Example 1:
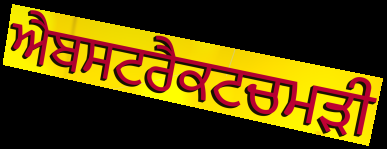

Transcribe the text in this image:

ਐਬਸਟਰੈਕਟਚਮੜੀ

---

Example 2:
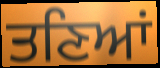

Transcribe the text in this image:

ਤਣਿਆਂ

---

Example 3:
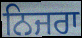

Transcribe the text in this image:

ਨਿਜਰਾ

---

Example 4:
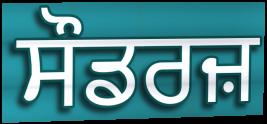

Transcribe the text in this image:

ਸੌਡਰਜ਼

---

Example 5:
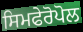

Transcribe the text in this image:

ਸਿਮਫੇਰੋਪੋਲ